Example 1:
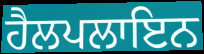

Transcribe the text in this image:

ਹੈਲਪਲਾਇਨ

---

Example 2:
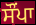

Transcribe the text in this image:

ਸੌਂਪਾ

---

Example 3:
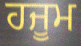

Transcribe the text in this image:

ਹਜੂਮ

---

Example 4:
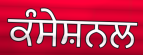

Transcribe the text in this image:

ਕੰਸੇਸ਼ਨਲ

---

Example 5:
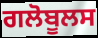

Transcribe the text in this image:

ਗਲੋਬੂਲਸ